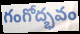
గంగోద్భవం